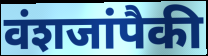
वंशजांपैकी